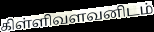
கிள்ளிவளவனிடம்